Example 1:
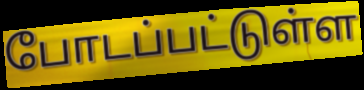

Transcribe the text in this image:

போடப்பட்டுள்ள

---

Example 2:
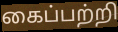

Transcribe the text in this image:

கைப்பற்றி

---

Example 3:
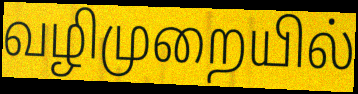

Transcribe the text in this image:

வழிமுறையில்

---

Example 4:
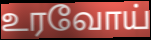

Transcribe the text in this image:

உரவோய்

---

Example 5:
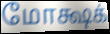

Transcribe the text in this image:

மோக்ஷக்